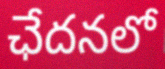
ఛేదనలో